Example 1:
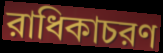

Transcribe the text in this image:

রাধিকাচরণ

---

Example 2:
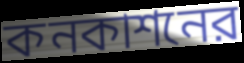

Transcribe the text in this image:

কনকাশনের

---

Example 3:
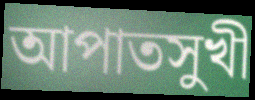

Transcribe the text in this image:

আপাতসুখী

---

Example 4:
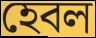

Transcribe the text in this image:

হেবল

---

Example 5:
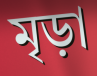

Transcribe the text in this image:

মৃড়া